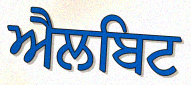
ਐਲਬਿਟ